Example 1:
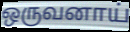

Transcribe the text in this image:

ஒருவனாய்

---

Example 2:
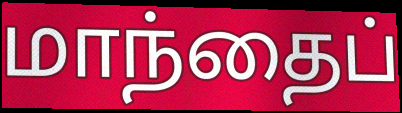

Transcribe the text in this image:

மாந்தைப்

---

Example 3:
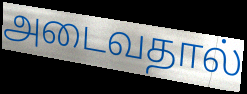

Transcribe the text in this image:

அடைவதால்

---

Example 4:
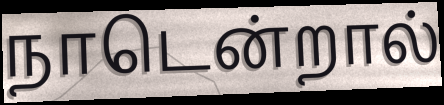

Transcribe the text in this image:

நாடென்றால்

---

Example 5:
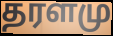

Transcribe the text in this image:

தரளமு